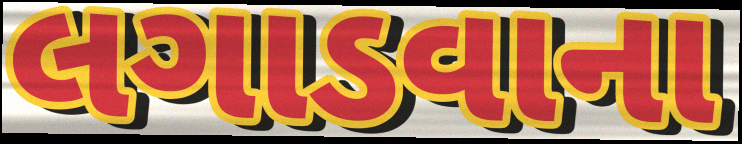
લગાડવાના